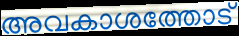
അവകാശത്തോട്